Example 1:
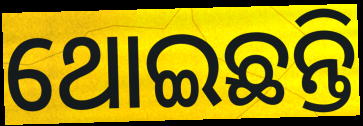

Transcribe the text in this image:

ଥୋଇଛନ୍ତି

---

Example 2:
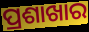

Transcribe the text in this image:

ପ୍ରଶାଖାର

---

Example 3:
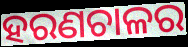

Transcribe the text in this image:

ହରଣଚାଳର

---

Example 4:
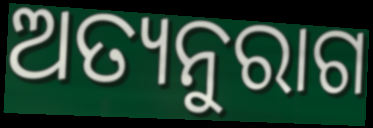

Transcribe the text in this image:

ଅତ୍ୟନୁରାଗ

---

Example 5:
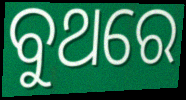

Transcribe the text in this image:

ବୁଥରେ